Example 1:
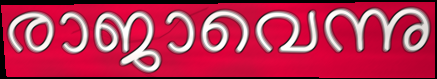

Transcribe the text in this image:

രാജാവെന്നു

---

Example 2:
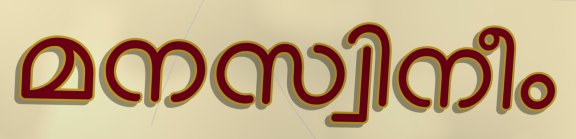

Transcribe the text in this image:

മനസ്വിനീം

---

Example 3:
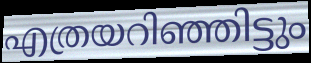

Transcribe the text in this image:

എത്രയറിഞ്ഞിട്ടും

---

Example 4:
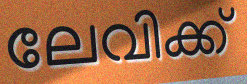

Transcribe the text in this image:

ലേവിക്ക്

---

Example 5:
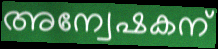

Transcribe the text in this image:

അന്വേഷകന്